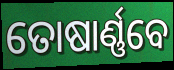
ତୋଷାର୍ଣ୍ଣବେ